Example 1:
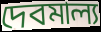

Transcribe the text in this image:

দেবমাল্য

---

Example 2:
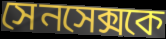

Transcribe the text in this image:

সেনসেক্সকে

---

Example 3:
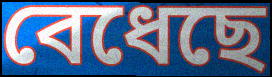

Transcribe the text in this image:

বেধেছে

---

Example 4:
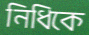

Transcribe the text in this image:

নিধিকে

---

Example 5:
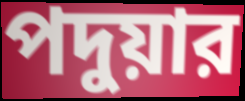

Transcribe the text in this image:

পদুয়ার